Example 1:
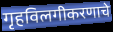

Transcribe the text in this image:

गृहविलगीकरणाचे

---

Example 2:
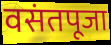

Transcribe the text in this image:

वसंतपूजा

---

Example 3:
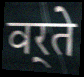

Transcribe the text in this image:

वर्ते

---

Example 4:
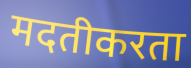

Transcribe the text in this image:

मदतीकरता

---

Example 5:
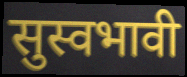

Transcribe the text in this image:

सुस्वभावी